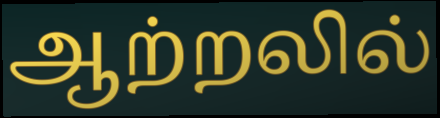
ஆற்றலில்